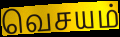
வெசயம்